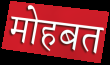
मोहबत